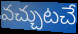
వచ్చుటచే